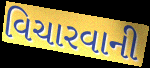
વિચારવાની